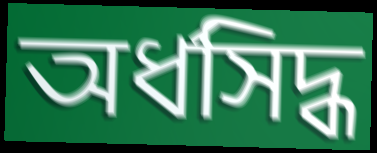
অর্ধসিদ্ধ